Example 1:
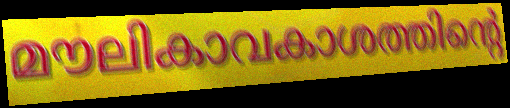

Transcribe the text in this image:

മൗലികാവകാശത്തിന്റെ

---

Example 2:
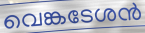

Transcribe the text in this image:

വെങ്കടേശൻ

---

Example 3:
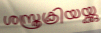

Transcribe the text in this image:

ശസ്ത്രക്രിയയ്ക്കു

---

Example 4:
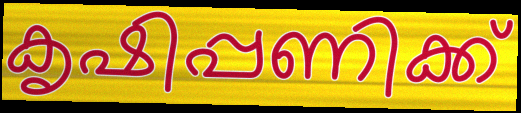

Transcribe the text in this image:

കൃഷിപ്പണിക്ക്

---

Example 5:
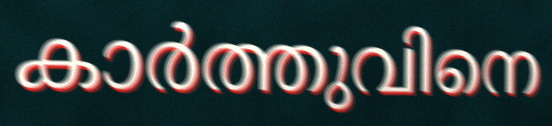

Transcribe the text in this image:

കാർത്തുവിനെ